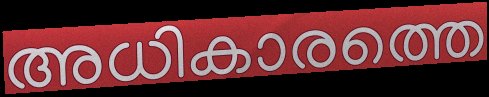
അധികാരത്തെ